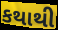
કથાથી